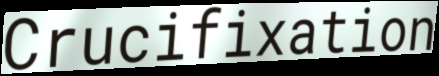
Crucifixation